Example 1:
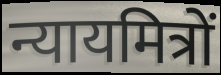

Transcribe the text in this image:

न्यायमित्रों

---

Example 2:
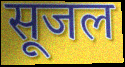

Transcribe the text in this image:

सूजल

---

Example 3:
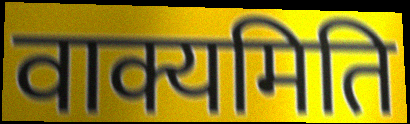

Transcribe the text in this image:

वाक्यमिति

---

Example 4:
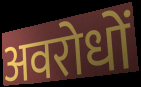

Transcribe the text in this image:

अवरोधों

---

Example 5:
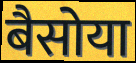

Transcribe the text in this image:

बैसोया